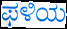
ಫಳಿಯ